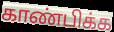
காண்பிக்க